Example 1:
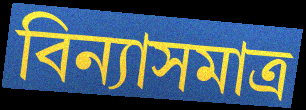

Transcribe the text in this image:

বিন্যাসমাত্র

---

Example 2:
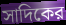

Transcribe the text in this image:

সাদিকের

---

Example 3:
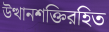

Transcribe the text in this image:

উত্থানশক্তিরহিত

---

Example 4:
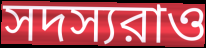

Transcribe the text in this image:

সদস্যরাও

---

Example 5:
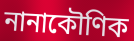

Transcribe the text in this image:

নানাকৌণিক